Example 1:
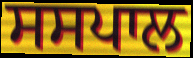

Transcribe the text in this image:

ਸਸਪਾਲ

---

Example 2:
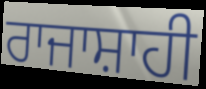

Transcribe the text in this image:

ਰਾਜਾਸ਼ਾਹੀ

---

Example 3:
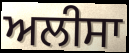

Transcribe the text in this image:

ਅਲੀਸਾ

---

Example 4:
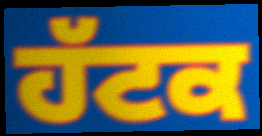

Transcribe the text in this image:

ਹੱਟਕ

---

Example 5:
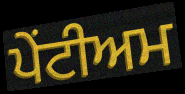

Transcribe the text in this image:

ਪੇਂਟੀਅਮ